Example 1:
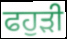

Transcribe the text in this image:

ਫਹੁੜੀ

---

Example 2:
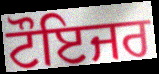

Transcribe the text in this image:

ਟੌਇਜਰ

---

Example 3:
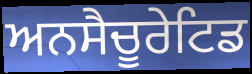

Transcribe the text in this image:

ਅਨਸੈਚੂਰੇਟਿਡ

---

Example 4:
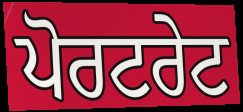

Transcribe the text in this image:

ਪੋਰਟਰੇਟ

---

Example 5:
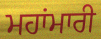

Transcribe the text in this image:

ਮਹਾਂਮਾਰੀ